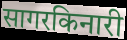
सागरकिनारी